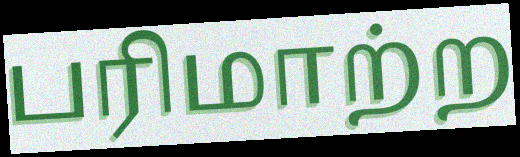
பரிமாற்ற